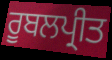
ਰੂਬਲਪ੍ਰੀਤ